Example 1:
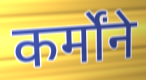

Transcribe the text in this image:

कर्मोंने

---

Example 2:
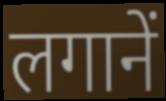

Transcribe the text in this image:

लगानें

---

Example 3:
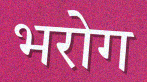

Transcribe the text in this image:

भरोग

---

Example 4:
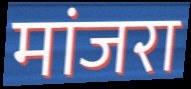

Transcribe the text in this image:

मांजरा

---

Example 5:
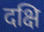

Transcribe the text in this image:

दक्षि